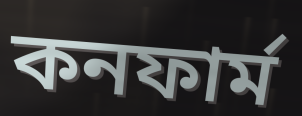
কনফাৰ্ম